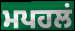
ਮਪਹਲਂ